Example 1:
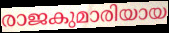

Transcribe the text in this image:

രാജകുമാരിയായ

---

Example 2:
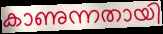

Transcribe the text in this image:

കാണുന്നതായി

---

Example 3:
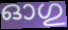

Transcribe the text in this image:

ഓഗു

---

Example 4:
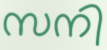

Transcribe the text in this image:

സനി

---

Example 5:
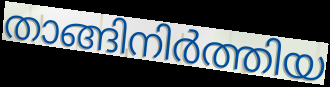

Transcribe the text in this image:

താങ്ങിനിർത്തിയ